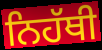
ਨਿਹੱਥੀ